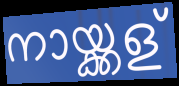
നായ്ക്കള്